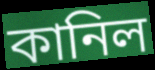
কানিল